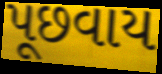
પૂછવાય